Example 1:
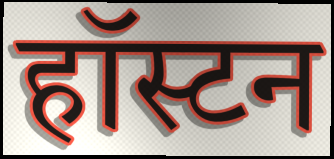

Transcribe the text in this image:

हॉस्टन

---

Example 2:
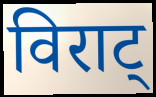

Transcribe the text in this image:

विराट्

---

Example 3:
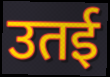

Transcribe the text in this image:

उतई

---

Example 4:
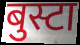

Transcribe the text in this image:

बुस्टा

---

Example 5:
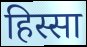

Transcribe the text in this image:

हिस्सा